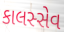
કાલસ્સેવ